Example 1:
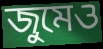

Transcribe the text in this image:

জুমেও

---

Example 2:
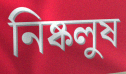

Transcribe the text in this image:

নিষ্কলুষ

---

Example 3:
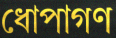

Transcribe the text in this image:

ধোপাগণ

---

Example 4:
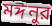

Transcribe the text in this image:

মঈনুর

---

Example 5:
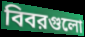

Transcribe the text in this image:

বিবরগুলো